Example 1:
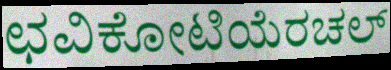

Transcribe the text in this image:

ಛವಿಕೋಟಿಯೆರಚಲ್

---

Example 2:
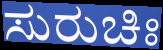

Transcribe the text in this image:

ಸುರುಚಿಃ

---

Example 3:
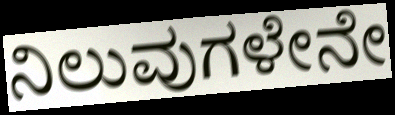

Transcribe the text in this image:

ನಿಲುವುಗಳೇನೇ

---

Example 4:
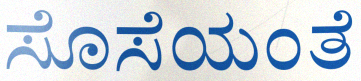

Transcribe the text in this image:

ಸೊಸೆಯಂತೆ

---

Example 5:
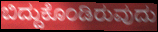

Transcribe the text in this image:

ಬಿದ್ದುಕೊಂಡಿರುವುದು